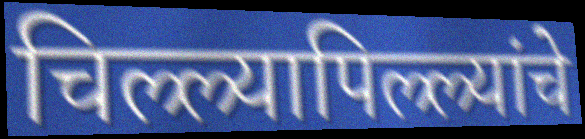
चिल्ल्यापिल्ल्यांचे